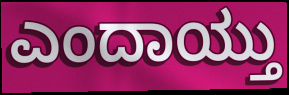
ಎಂದಾಯ್ತು